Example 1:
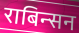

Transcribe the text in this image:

राबिन्सन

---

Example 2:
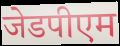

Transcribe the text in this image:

जेडपीएम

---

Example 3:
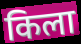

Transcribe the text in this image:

किला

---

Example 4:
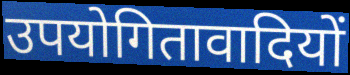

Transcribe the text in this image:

उपयोगितावादियों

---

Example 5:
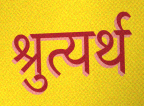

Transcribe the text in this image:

श्रुत्यर्थ